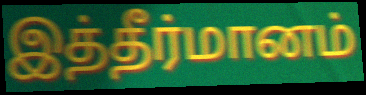
இத்தீர்மானம்